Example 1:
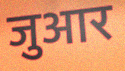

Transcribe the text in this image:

जुआर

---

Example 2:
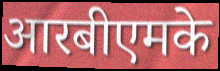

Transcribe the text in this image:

आरबीएमके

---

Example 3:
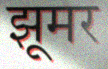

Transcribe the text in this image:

झूमर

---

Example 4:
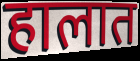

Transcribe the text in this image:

हालात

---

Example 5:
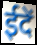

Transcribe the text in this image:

ईदें